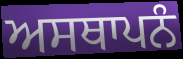
ਅਸਥਾਪਨੰ